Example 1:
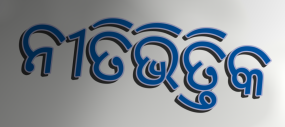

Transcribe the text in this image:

ନୀତିଭିତ୍ତିକ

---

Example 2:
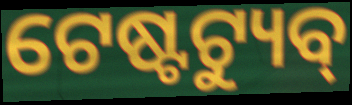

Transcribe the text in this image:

ଟେଷ୍ଟଟ୍ୟୁବ୍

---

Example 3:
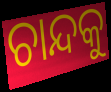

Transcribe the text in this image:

ଚାନ୍ଦକୁ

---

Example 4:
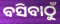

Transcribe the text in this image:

ବସିବାଠୁଁ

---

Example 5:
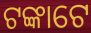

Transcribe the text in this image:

ଟଙ୍କାଟେ